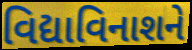
વિદ્યાવિનાશને